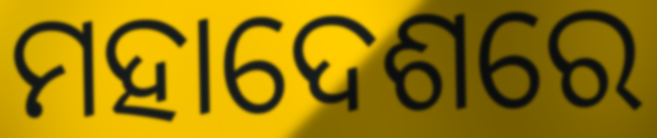
ମହାଦେଶରେ